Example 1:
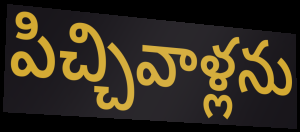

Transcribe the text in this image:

పిచ్చివాళ్లను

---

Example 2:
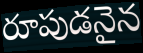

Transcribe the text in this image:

రూపుడనైన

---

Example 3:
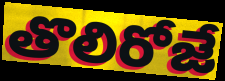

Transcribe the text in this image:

తొలిరోజే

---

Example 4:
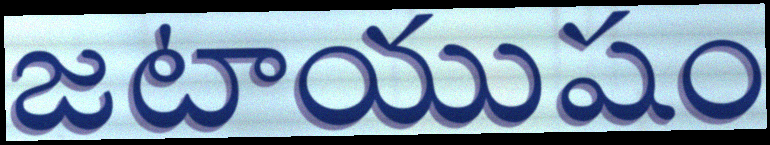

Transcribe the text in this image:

జటాయుషం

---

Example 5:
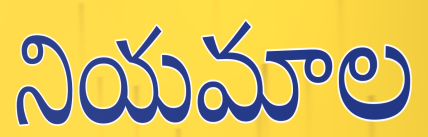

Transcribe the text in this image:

నియమాల